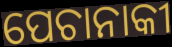
ପେଚାନାକୀ